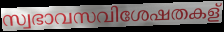
സ്വഭാവസവിശേഷതകള്